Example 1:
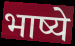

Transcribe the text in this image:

भाष्ये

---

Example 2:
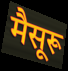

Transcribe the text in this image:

मैसूरू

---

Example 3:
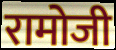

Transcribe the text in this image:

रामोजी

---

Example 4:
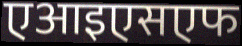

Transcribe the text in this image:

एआइएसएफ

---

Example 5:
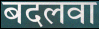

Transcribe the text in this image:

बदलवा